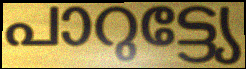
പാറുട്ട്യേ